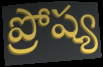
ప్రోష్య